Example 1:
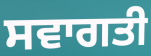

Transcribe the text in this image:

ਸਵਾਗਤੀ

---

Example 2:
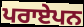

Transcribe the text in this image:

ਪਰਾਏਪਨ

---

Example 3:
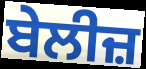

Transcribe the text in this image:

ਬੇਲੀਜ਼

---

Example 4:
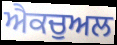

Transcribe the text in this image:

ਐਕਚੁਅਲ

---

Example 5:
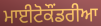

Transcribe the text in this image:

ਮਾਈਟੋਕੌਂਡਰੀਆ